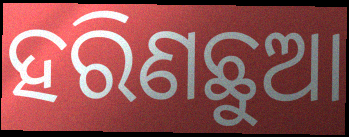
ହରିଣଛୁଆ